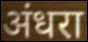
अंधरा